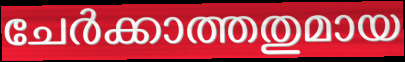
ചേർക്കാത്തതുമായ